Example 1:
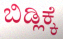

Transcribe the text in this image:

ಬಿಡ್ಲಿಕ್ಕೆ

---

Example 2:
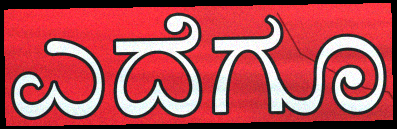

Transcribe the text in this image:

ಎದೆಗೂ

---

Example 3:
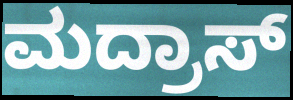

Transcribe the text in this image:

ಮದ್ರಾಸ್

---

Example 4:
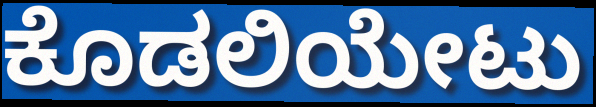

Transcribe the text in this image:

ಕೊಡಲಿಯೇಟು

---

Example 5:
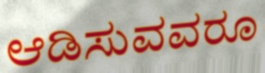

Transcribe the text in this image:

ಆಡಿಸುವವರೂ